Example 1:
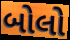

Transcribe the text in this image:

બોલો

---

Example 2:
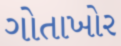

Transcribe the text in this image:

ગોતાખોર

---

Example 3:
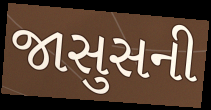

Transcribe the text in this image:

જાસુસની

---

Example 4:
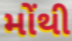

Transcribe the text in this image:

મોંથી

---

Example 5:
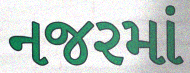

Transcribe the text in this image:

નજરમાં